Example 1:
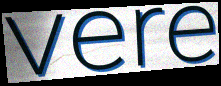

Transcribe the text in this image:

vere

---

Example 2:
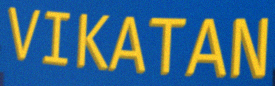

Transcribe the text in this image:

VIKATAN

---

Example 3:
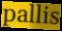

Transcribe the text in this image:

pallis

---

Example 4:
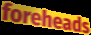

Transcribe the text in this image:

foreheads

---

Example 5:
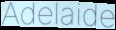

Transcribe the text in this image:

Adelaide